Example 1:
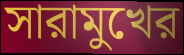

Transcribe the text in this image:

সারামুখের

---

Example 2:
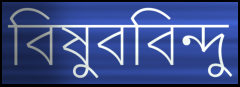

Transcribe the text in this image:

বিষুববিন্দু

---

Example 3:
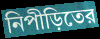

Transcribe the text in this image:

নিপীড়িতের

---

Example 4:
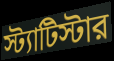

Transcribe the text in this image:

স্ট্যাটিস্টার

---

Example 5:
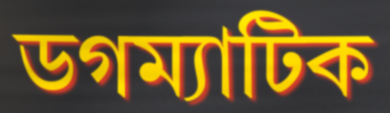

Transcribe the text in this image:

ডগম্যাটিক